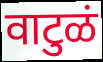
वाटुळं